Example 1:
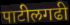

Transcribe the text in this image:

पाटीलगढी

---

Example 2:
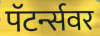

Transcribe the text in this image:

पॅटर्न्सवर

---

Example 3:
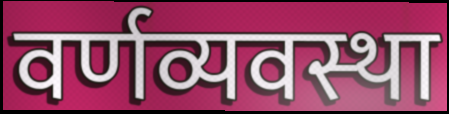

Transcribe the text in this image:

वर्णव्यवस्था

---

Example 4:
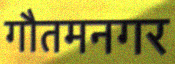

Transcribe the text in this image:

गौतमनगर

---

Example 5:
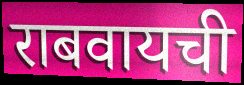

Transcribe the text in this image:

राबवायची